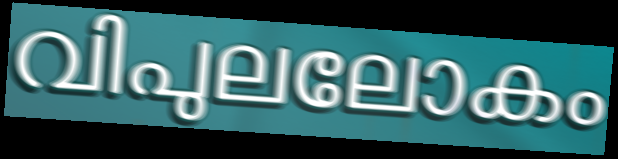
വിപുലലോകം